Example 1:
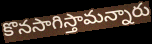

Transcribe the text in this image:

కొనసాగిస్తామన్నారు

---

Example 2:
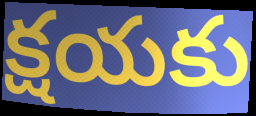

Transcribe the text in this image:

క్షయకు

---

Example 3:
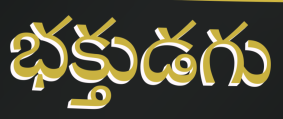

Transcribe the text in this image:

భక్తుడగు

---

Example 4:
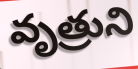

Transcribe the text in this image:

వృత్రుని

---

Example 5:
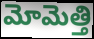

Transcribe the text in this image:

మోమెత్తి